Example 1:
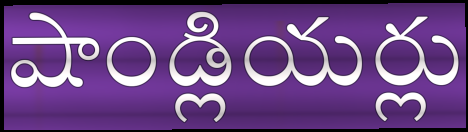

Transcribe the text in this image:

షాండ్లియర్లు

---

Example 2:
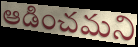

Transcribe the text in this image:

ఆడించమని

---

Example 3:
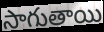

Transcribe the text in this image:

సాగుతాయి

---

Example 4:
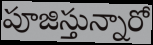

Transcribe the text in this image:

పూజిస్తున్నారో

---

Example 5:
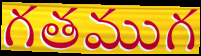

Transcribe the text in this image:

గతముగ